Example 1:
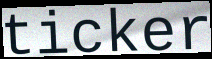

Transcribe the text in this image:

ticker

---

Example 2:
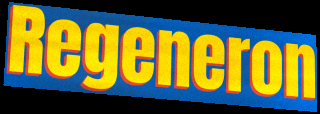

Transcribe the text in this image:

Regeneron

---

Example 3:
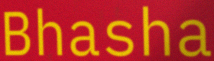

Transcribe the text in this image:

Bhasha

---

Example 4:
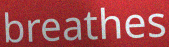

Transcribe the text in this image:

breathes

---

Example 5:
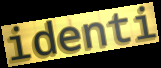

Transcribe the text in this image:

identi